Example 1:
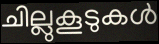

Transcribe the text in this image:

ചില്ലുകൂടുകൾ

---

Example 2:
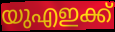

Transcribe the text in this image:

യുഎഇക്ക്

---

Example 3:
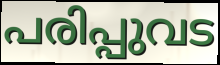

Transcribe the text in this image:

പരിപ്പുവട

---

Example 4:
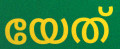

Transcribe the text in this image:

യേത്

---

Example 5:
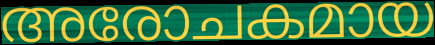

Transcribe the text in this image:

അരോചകമായ